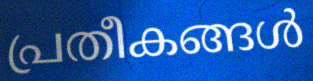
പ്രതീകങ്ങൾ